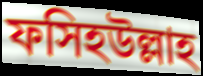
ফসিহউল্লাহ